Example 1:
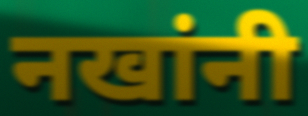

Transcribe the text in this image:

नखांनी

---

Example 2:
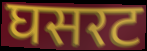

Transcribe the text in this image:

घसरट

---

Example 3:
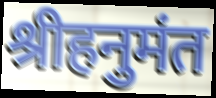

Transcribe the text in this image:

श्रीहनुमंत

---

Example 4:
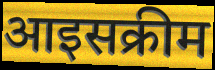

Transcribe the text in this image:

आइसक्रीम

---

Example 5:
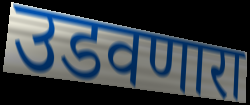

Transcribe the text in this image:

उडवणारा